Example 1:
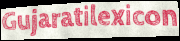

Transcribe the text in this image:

Gujaratilexicon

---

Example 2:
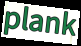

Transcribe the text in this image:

plank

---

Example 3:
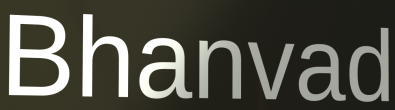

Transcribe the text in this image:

Bhanvad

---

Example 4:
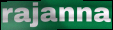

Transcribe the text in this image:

rajanna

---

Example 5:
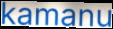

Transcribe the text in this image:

kamanu